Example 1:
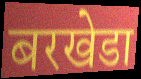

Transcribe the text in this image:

बरखेडा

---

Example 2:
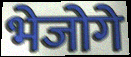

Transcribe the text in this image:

भेजोगे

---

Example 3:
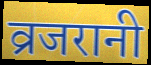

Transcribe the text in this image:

व्रजरानी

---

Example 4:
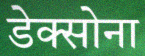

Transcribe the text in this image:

डेक्सोना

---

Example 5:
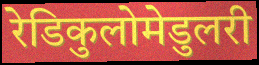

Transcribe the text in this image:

रेडिकुलोमेडुलरी